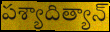
పశ్యాదిత్యాన్